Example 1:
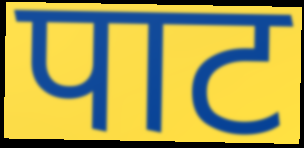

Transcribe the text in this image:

पाट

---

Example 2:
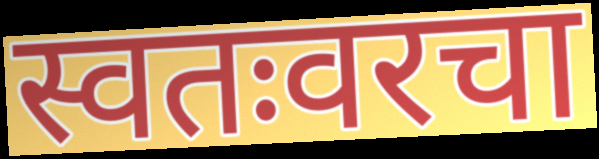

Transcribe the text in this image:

स्वतःवरचा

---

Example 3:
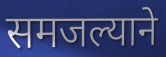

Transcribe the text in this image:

समजल्याने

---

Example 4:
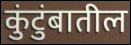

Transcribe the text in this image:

कुंटुंबातील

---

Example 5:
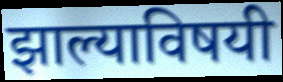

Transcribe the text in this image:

झाल्याविषयी